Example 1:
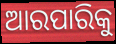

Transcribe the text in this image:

ଆରପାରିକୁ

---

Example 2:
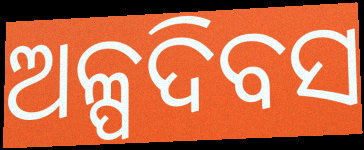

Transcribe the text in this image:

ଅଳ୍ପଦିବସ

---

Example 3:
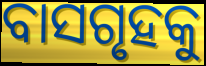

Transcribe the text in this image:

ବାସଗୃହକୁ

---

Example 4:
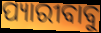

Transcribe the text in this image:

ପ୍ୟାରୀବାବୁ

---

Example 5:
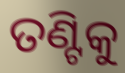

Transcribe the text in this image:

ତଣ୍ଟିକୁ